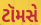
ટૉમસે